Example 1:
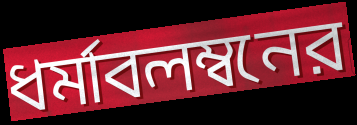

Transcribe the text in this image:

ধর্মাবলম্বনের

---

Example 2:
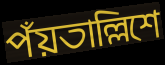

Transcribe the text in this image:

পঁয়তাল্লিশে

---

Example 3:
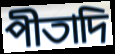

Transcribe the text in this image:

পীতাদি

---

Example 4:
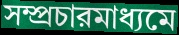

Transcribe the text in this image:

সম্প্রচারমাধ্যমে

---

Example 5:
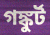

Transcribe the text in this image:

গঙ্কুর্ট